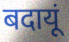
बदायूं